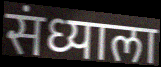
संध्याला